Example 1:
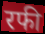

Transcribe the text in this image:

रफी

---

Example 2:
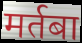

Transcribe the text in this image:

मर्तबा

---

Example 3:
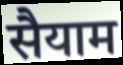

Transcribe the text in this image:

सैयाम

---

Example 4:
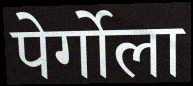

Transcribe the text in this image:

पेर्गोला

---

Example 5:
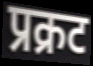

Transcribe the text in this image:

प्रक्रट